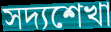
সদ্যশেখা